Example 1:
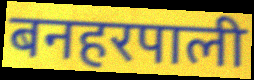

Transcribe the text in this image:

बनहरपाली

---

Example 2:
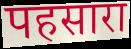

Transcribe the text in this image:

पहसारा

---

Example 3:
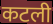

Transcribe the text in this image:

कटली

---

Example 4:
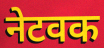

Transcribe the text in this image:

नेटवक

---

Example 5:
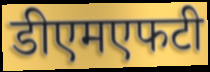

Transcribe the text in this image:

डीएमएफटी